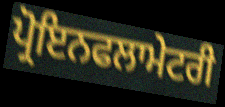
ਪ੍ਰੋਇਨਫਲਾਮੇਟਰੀ